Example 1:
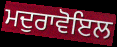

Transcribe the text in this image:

ਮਦੁਰਾਵੋਇਲ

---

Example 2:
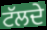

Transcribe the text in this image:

ਟੱਲਦੇ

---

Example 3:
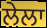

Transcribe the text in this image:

ਲੇਲਾ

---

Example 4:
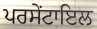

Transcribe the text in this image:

ਪਰਸੇਂਟਾਇਲ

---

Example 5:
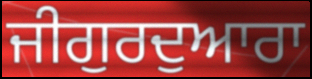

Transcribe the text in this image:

ਜੀਗੁਰਦੁਆਰਾ